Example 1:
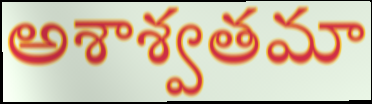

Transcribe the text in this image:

అశాశ్వతమా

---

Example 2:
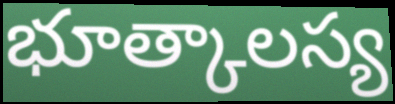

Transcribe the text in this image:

భూత్కాలస్య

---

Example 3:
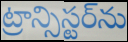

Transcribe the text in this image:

ట్రాన్సిస్టర్‌ను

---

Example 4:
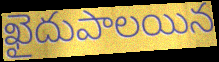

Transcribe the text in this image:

ఖైదుపాలయిన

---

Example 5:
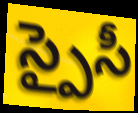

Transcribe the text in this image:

స్పైసీ